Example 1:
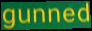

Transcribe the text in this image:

gunned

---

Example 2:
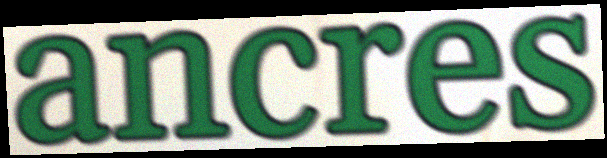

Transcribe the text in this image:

ancres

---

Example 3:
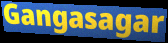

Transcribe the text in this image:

Gangasagar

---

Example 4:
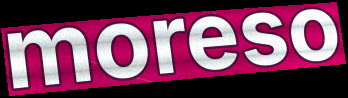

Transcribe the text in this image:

moreso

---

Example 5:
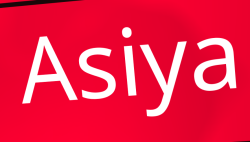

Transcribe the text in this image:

Asiya